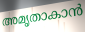
അമൃതാകാൻ